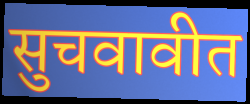
सुचवावीत